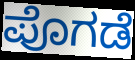
ಪೊಗಡೆ